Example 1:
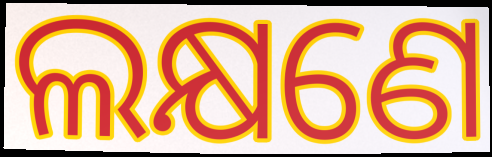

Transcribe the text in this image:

ଲକ୍ଷଣେ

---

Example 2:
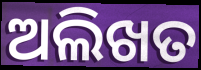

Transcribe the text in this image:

ଅଲିଖତ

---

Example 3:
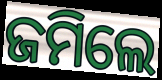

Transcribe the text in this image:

ଜମିଲେ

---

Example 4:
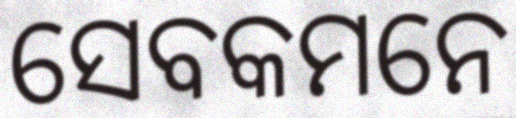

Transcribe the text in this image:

ସେବକମନେ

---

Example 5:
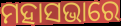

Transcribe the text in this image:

ମହାସଭାରେ